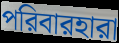
পরিবারহারা